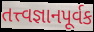
તત્ત્વજ્ઞાનપૂર્વક